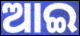
ଆଇ